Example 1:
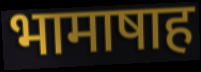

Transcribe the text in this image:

भामाषाह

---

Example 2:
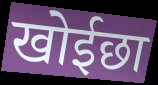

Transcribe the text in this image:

खोईछा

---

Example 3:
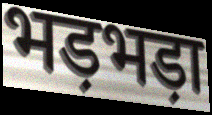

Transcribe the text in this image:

भड़भड़ा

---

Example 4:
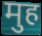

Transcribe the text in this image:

मुह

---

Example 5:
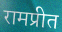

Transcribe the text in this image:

रामप्रीत